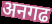
अनगढ